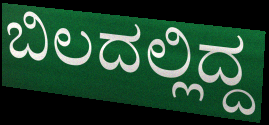
ಬಿಲದಲ್ಲಿದ್ದ